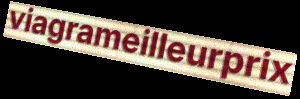
viagrameilleurprix